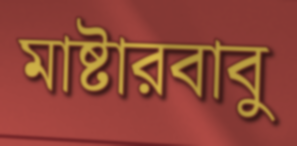
মাষ্টারবাবু